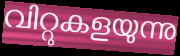
വിറ്റുകളയുന്നു